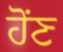
ਹੋਂਣ